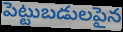
పెట్టుబడులపైన